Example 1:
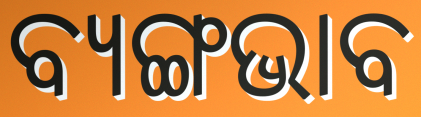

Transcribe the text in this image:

ବ୍ୟଙ୍ଗଭାବ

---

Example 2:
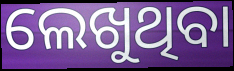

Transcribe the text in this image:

ଲେଖୁଥିବା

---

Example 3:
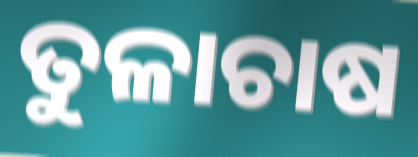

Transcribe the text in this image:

ତୁଳାଚାଷ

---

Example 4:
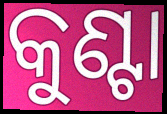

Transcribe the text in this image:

କୁଣ୍ଟା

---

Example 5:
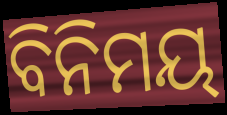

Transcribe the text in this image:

ବିନିମୟ